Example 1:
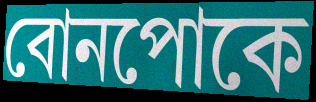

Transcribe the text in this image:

বোনপোকে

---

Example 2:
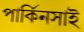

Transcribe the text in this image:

পার্কিনসাই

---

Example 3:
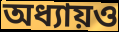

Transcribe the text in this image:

অধ্যায়ও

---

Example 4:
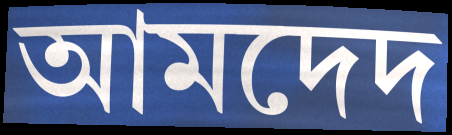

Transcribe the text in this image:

আমদেদ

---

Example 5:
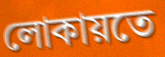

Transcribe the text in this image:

লোকায়তে